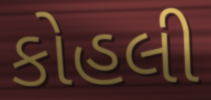
કોહલી